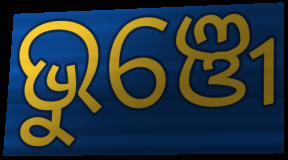
ଭୁଞ୍ଜେ